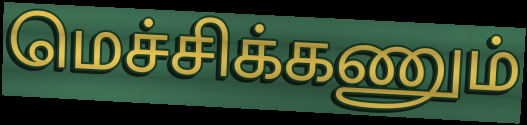
மெச்சிக்கணும்